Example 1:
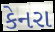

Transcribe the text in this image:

કેનરા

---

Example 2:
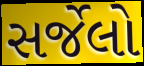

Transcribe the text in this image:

સર્જેલો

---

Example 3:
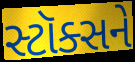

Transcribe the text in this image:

સ્ટૉક્સને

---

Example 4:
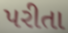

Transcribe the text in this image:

પરીતા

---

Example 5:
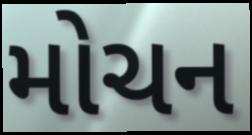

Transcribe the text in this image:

મોચન